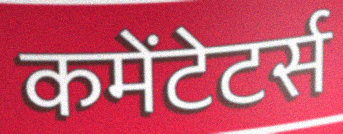
कमेंटेटर्स